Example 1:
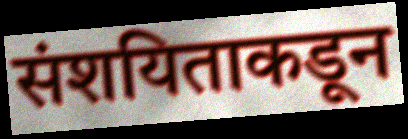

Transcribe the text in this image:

संशयिताकडून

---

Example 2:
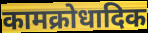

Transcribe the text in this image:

कामक्रोधादिक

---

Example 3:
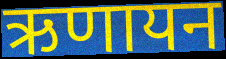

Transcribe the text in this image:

ऋणायन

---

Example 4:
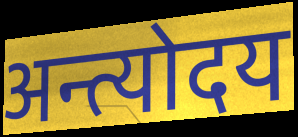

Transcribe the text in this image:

अन्त्योदय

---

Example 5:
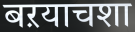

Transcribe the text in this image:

बऱयाचशा